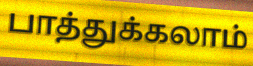
பாத்துக்கலாம்